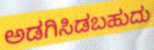
ಅಡಗಿಸಿಡಬಹುದು